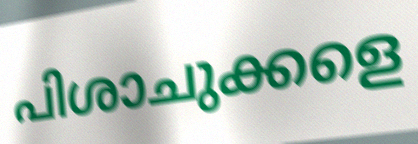
പിശാചുക്കളെ